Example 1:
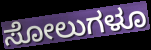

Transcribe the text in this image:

ಸೋಲುಗಳೂ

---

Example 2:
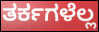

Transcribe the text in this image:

ತರ್ಕಗಳೆಲ್ಲ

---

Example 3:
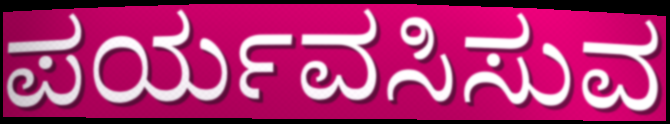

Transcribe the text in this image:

ಪರ್ಯವಸಿಸುವ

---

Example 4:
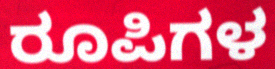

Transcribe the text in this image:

ರೂಪಿಗಳ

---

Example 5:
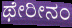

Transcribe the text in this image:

ಥೇರೀನಂ